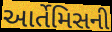
આર્તેમિસની